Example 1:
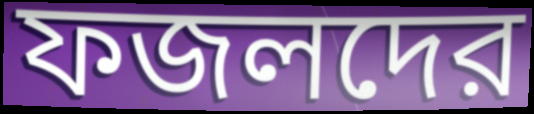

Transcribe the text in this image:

ফজলদের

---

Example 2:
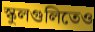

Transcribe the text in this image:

স্কুলগুলিতেও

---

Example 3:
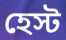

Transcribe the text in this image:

হেস্ট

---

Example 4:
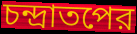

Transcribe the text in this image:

চন্দ্রাতপের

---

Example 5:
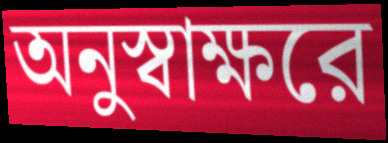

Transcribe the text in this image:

অনুস্বাক্ষরে